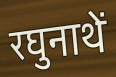
रघुनाथें